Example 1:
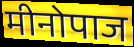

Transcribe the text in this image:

मीनोपाज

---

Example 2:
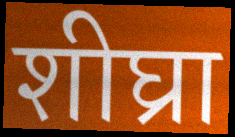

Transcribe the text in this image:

शीघ्रा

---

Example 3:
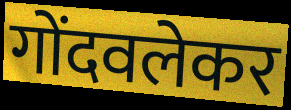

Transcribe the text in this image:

गोंदवलेकर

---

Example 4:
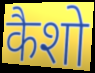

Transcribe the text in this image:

कैशो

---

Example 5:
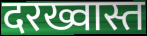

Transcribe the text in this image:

दरख्वास्त